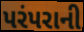
પરંપરાની